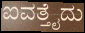
ಐವತ್ತೈದು